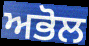
ਅਭੋਲ